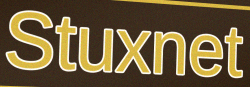
Stuxnet